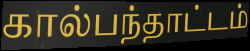
கால்பந்தாட்டம்